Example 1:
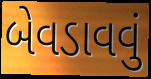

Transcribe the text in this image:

બેવડાવવું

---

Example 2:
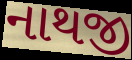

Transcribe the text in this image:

નાથજી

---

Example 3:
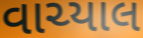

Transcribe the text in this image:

વાચ્યાલ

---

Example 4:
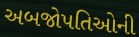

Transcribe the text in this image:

અબજોપતિઓની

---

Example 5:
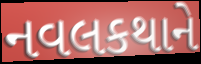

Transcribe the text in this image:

નવલકથાને